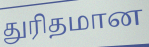
துரிதமான